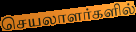
செயலாளர்களில்